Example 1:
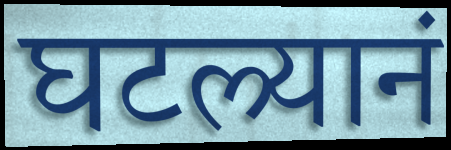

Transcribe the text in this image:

घटल्यानं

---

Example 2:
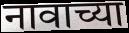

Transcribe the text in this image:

नावाच्या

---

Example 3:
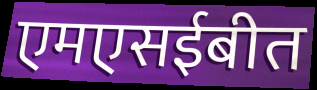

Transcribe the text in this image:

एमएसईबीत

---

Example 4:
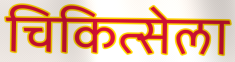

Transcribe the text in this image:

चिकित्सेला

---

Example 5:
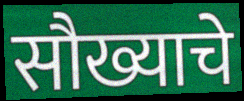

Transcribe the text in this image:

सौख्याचे